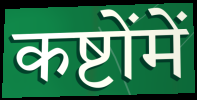
कष्टोंमें